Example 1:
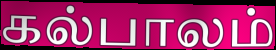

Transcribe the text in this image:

கல்பாலம்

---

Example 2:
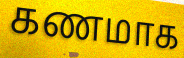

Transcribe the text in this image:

கணமாக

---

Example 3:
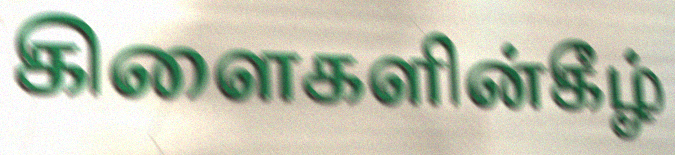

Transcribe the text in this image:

கிளைகளின்கீழ்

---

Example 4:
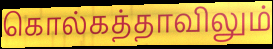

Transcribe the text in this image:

கொல்கத்தாவிலும்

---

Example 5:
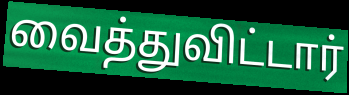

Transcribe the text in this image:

வைத்துவிட்டார்